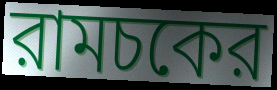
রামচকের